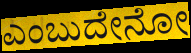
ಎಂಬುದೇನೋ